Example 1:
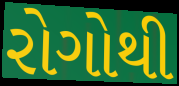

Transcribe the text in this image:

રોગોથી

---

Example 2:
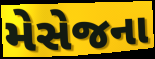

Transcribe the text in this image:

મેસેજના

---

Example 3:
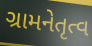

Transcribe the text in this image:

ગ્રામનેતૃત્વ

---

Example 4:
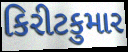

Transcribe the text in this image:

કિરીટકુમાર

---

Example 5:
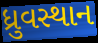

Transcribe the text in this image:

ધ્રુવસ્થાન